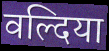
वल्दिया